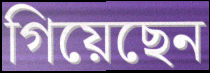
গিয়েছেন